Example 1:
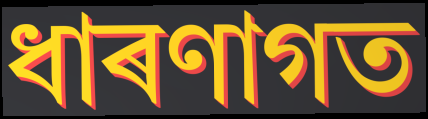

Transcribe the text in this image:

ধাৰণাগত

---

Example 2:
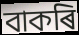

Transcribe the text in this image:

বাকৰি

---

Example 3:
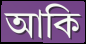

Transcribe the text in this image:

আকি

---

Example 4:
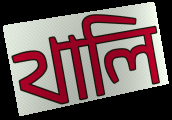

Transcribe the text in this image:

থালি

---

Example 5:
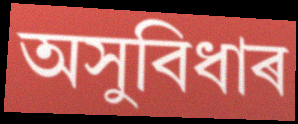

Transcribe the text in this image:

অসুবিধাৰ